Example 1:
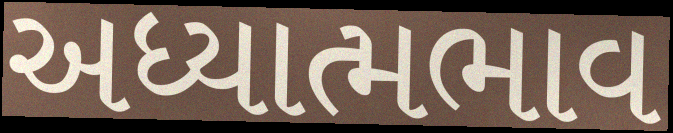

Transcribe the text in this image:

અધ્યાત્મભાવ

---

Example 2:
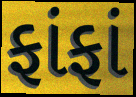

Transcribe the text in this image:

ફાંફાં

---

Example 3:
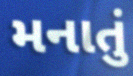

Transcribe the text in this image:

મનાતું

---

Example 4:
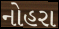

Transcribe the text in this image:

નોહરા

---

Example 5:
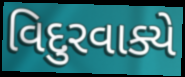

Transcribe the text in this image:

વિદુરવાક્યે